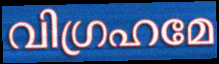
വിഗ്രഹമേ